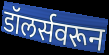
डॉलर्सवरून